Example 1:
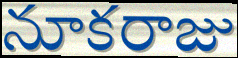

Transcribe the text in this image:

నూకరాజు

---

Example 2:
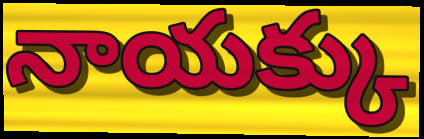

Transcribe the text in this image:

నాయక్కు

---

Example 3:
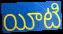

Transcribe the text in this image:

యీటి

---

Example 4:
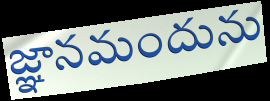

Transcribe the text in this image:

జ్ఞానమందును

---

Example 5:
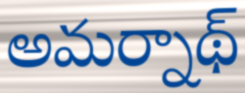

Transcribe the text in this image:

అమర్నాథ్